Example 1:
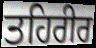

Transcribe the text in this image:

ਤਹਿਰੀਰ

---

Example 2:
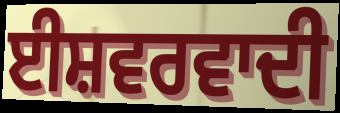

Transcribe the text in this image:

ਈਸ਼ਵਰਵਾਦੀ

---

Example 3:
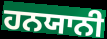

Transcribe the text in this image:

ਹਨਯਾਨੀ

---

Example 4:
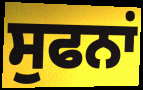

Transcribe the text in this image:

ਸੁਫਨਾਂ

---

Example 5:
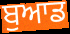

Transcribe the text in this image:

ਬੁਆਡ